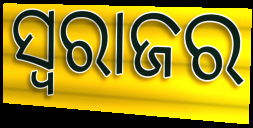
ସ୍ବରାଜର